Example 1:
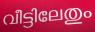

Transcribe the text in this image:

വീട്ടിലേതും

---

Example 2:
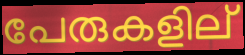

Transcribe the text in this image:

പേരുകളില്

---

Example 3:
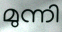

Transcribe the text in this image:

മുന്നി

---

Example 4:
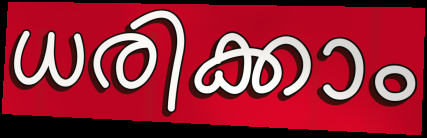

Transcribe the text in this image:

ധരിക്കാം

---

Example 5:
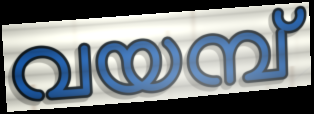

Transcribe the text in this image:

വയമ്പ്